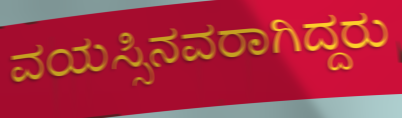
ವಯಸ್ಸಿನವರಾಗಿದ್ದರು